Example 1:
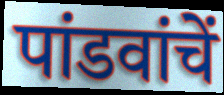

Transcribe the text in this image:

पांडवांचें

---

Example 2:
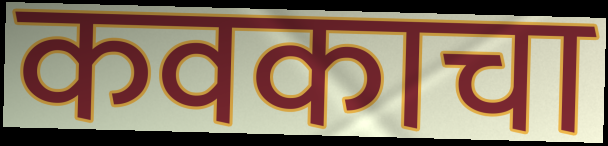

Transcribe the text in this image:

कवकाचा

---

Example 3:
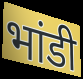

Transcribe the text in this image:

भांडी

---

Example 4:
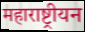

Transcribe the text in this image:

महाराष्ट्रीयन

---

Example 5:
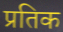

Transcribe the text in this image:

प्रतिक